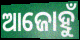
ଆଜୋହୁଁ